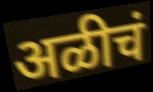
अळीचं